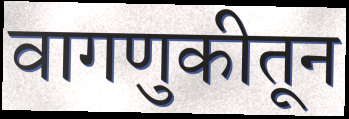
वागणुकीतून